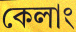
কেলাং